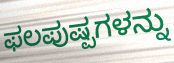
ಫಲಪುಷ್ಪಗಳನ್ನು